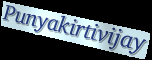
Punyakirtivijay